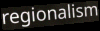
regionalism